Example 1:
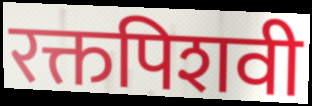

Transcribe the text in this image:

रक्तपिशवी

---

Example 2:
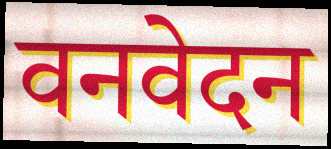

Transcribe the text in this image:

वनवेदन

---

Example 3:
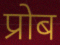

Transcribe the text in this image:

प्रोब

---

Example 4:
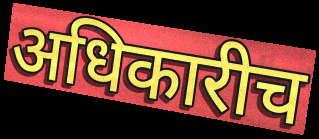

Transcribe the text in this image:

अधिकारीच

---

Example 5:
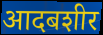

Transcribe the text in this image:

आदबशीर